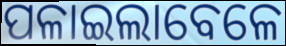
ପଳାଇଲାବେଳେ